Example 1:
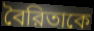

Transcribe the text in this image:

বৈরিতাকে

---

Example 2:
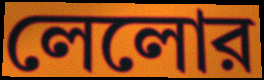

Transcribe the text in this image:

লেলোর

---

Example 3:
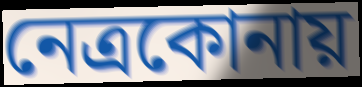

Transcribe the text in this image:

নেত্রকোনায়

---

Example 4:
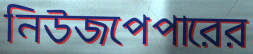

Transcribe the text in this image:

নিউজপেপারের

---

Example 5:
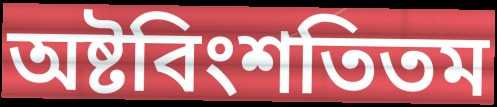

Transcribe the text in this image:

অষ্টবিংশতিতম